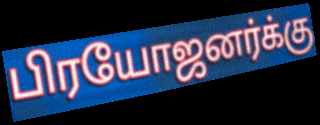
பிரயோஜனர்க்கு